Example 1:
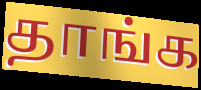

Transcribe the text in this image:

தாங்க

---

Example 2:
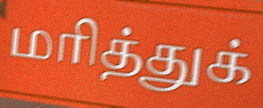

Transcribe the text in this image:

மரித்துக்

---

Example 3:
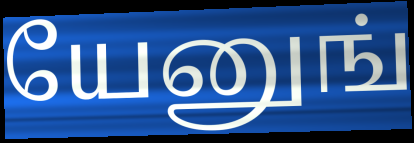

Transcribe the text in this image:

யேனுங்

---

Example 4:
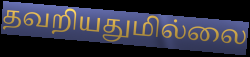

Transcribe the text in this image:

தவறியதுமில்லை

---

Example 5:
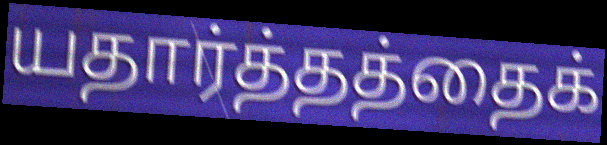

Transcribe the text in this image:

யதார்த்தத்தைக்